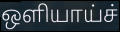
ஒளியாய்ச்